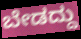
ಬೇಡದ್ದು